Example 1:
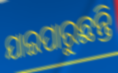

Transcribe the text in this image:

ଯାଇପାରୁଛନ୍ତି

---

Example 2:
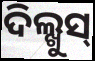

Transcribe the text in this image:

ଦିଲ୍ଖୁସ୍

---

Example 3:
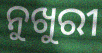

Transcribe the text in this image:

ନୁଖୁରୀ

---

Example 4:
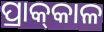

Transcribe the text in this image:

ପ୍ରାକ୍‌କାଳ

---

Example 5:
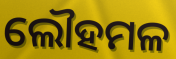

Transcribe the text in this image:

ଲୌହମଳ